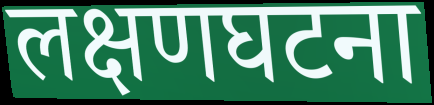
लक्षणघटना